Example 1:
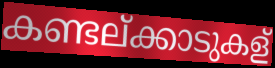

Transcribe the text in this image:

കണ്ടല്ക്കാടുകള്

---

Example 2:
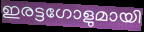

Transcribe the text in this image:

ഇരട്ടഗോളുമായി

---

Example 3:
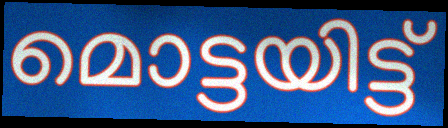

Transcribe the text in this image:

മൊട്ടയിട്ട്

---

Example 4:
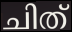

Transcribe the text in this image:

ചിത്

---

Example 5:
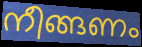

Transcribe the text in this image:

നീങ്ങണം